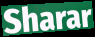
Sharar